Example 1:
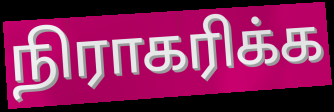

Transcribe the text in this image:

நிராகரிக்க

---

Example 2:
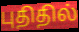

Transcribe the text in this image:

புதிதில்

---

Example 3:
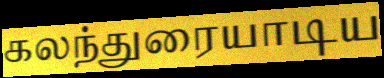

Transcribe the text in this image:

கலந்துரையாடிய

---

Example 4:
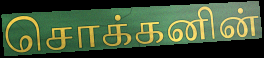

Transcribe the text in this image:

சொக்கனின்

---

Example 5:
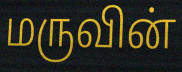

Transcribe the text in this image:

மருவின்